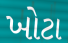
ખોટા